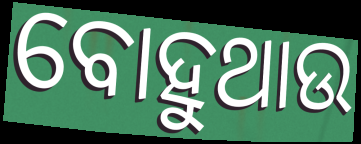
ବୋହୁଥାଉ